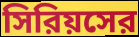
সিরিয়সের